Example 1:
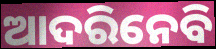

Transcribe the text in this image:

ଆଦରିନେବି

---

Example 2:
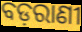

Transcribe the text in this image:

ବଡ଼ରାଣୀ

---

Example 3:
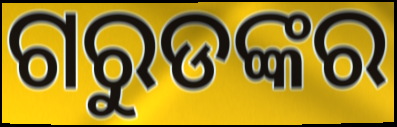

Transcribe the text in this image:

ଗରୁଡଙ୍କର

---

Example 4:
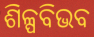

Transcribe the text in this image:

ଶିଳ୍ପବିଭବ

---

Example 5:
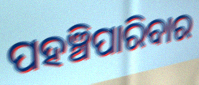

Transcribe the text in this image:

ପହଞ୍ଚିପାରିବାର